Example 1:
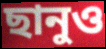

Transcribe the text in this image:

ছানুও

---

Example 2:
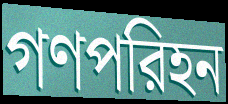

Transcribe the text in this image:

গণপরিহন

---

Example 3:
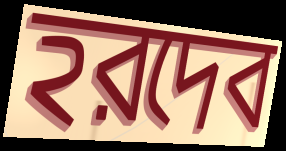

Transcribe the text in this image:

হরদেব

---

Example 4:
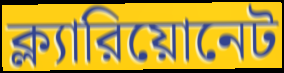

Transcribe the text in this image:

ক্ল্যারিয়োনেট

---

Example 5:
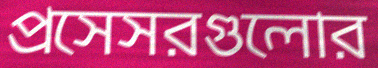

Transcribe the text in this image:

প্রসেসরগুলোর